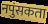
नपुंसकता